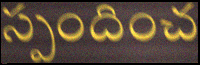
స్పందించ